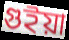
গুইয়া